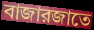
বাজারজাতে